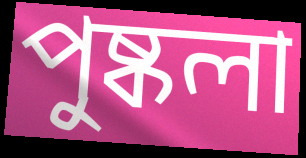
পুষ্কলা